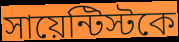
সায়েন্টিস্টকে